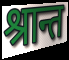
श्रान्त